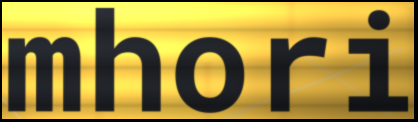
mhori